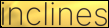
inclines